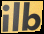
ilb